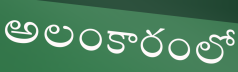
అలంకారంలో